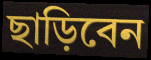
ছাড়িবেন